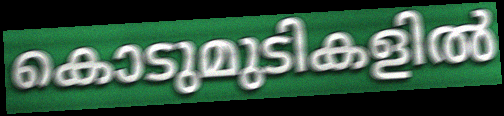
കൊടുമുടികളിൽ